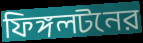
ফিঙ্গলটনের